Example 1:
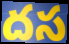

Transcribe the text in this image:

దస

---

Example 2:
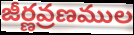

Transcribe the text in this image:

జీర్ణవ్రణముల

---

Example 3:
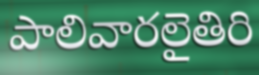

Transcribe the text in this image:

పాలివారలైతిరి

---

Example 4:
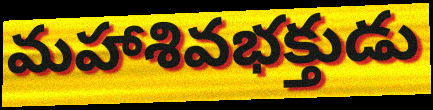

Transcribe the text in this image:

మహాశివభక్తుడు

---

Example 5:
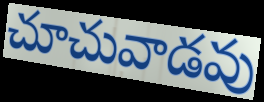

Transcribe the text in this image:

చూచువాడవు